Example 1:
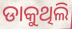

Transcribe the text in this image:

ଡାକୁଥିଲି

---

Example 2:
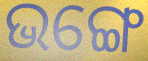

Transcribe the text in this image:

ଭଙ୍ଗେ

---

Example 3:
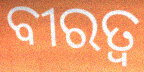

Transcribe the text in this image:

ବୀରତ୍ୱ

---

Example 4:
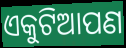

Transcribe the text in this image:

ଏକୁଟିଆପଣ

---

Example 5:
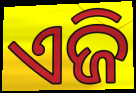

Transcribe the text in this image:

ଏଜି